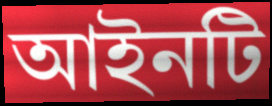
আইনটি